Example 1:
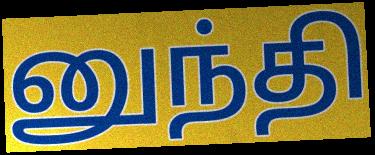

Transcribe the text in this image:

னுந்தி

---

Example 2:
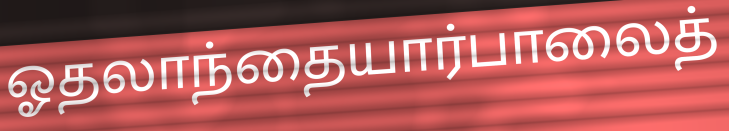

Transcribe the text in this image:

ஓதலாந்தையார்பாலைத்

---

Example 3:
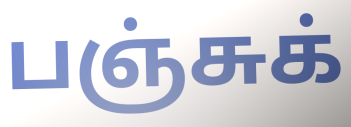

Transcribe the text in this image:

பஞ்சுக்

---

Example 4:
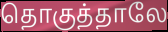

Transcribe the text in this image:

தொகுத்தாலே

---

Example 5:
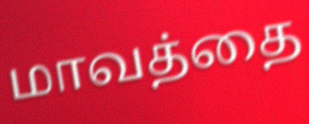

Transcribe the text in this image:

மாவத்தை